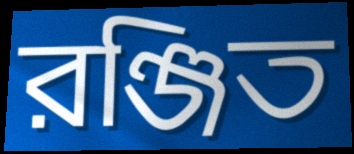
রঞ্জিত